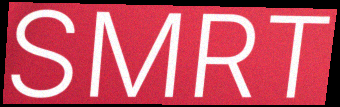
SMRT